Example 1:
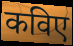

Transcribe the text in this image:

कविए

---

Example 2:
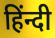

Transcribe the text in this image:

हिंन्दी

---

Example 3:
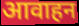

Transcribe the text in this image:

आवाहन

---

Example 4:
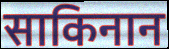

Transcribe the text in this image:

साकिनान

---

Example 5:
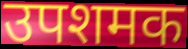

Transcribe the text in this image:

उपशमक